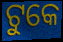
ଟୁକେ